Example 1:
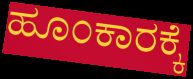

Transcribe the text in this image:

ಹೂಂಕಾರಕ್ಕೆ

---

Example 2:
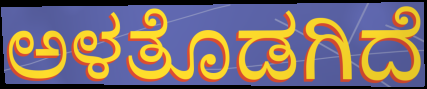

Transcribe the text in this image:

ಅಳತೊಡಗಿದೆ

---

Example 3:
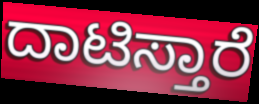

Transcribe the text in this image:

ದಾಟಿಸ್ತಾರೆ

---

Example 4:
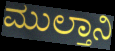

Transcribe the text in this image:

ಮುಲ್ತಾನಿ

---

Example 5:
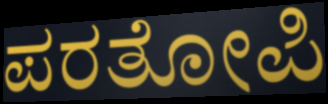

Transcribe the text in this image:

ಪರತೋಪಿ